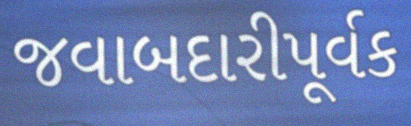
જવાબદારીપૂર્વક